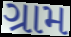
ગ્રામ